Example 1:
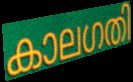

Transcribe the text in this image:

കാലഗതി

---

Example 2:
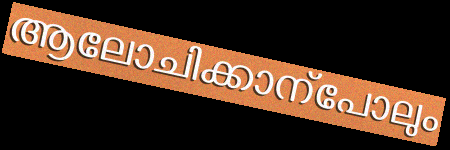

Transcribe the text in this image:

ആലോചിക്കാന്പോലും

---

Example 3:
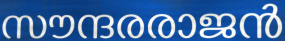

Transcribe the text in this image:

സൗന്ദരരാജൻ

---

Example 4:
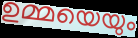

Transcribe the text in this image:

ഉമ്മയെയും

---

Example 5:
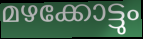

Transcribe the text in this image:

മഴക്കോട്ടും